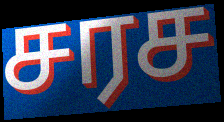
சரச